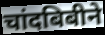
चांदबिबीने